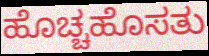
ಹೊಚ್ಚಹೊಸತು